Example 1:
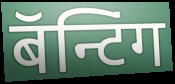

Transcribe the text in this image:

बॅन्टिंग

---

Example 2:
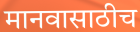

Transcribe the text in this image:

मानवासाठीच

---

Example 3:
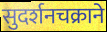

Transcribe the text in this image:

सुदर्शनचक्राने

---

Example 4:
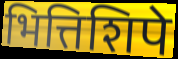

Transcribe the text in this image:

भित्तिशिपे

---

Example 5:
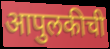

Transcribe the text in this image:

आपुलकीची